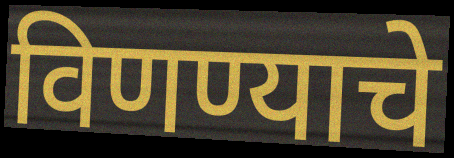
विणण्याचे